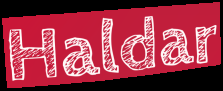
Haldar